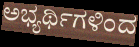
ಅಭ್ಯರ್ಥಿಗಳಿಂದ